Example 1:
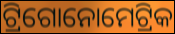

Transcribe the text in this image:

ଟ୍ରିଗୋନୋମେଟ୍ରିକ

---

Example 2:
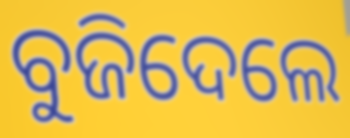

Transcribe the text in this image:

ବୁଜିଦେଲେ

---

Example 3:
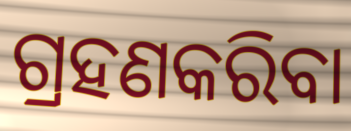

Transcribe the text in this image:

ଗ୍ରହଣକରିବା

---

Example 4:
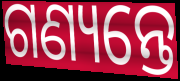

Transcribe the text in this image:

ଗଣ୍ୟନ୍ତେ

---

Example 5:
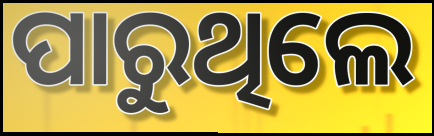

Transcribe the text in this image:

ପାରୁଥିଲେ